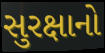
સુરક્ષાનો